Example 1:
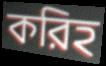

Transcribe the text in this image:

করিহ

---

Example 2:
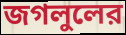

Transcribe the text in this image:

জগলুলের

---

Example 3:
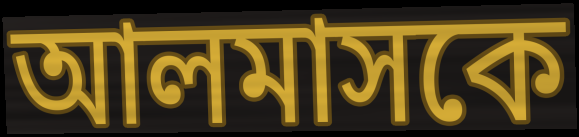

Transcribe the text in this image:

আলমাসকে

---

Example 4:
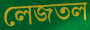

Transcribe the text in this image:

লেজতল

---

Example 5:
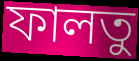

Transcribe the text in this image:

ফালতু